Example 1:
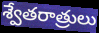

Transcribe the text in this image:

శ్వేతరాత్రులు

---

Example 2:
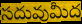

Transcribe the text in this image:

సదువుమీద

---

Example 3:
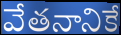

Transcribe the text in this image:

వేతనానికే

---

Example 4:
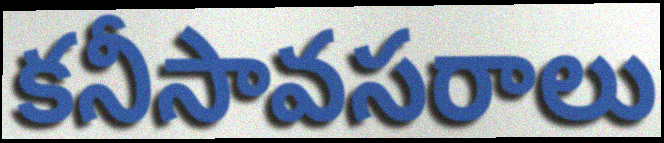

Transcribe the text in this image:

కనీసావసరాలు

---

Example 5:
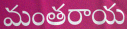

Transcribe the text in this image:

మంతరాయ